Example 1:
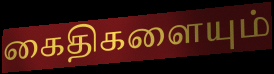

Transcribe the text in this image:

கைதிகளையும்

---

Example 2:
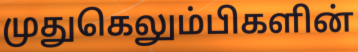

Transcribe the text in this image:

முதுகெலும்பிகளின்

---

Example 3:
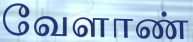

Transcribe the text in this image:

வேளாண்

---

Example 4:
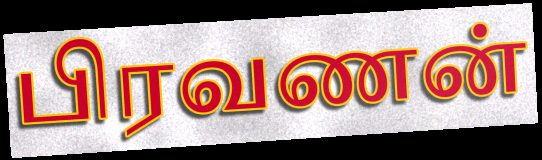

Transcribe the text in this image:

பிரவணன்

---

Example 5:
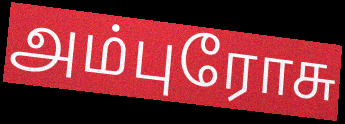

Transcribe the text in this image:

அம்புரோசு